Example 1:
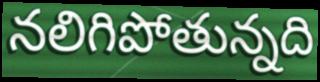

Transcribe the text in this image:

నలిగిపోతున్నది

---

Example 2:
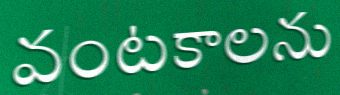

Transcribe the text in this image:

వంటకాలను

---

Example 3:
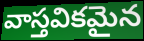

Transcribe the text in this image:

వాస్తవికమైన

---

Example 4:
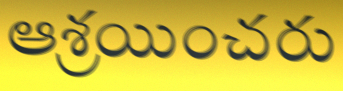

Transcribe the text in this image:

ఆశ్రయించరు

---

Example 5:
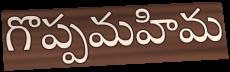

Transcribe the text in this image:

గొప్పమహిమ